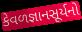
કેવળજ્ઞાનસૂર્યનો